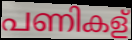
പണികള്